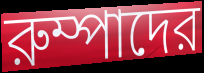
রুম্পাদের